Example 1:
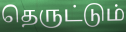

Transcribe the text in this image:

தெருட்டும்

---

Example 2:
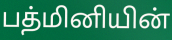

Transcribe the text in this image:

பத்மினியின்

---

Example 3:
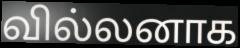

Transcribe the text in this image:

வில்லனாக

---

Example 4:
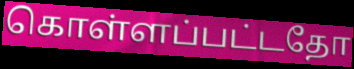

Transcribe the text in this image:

கொள்ளப்பட்டதோ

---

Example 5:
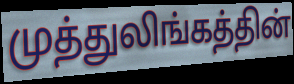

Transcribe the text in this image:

முத்துலிங்கத்தின்